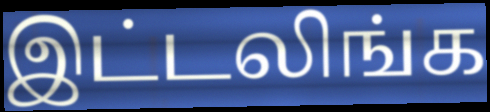
இட்டலிங்க